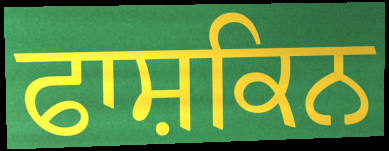
ਫਾਸ਼ਕਿਨ